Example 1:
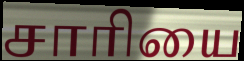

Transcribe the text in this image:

சாரியை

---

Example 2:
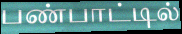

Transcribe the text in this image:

பண்பாட்டில்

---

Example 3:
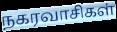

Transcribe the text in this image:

நகரவாசிகள்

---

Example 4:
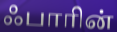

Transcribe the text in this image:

ஃபாரின்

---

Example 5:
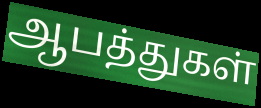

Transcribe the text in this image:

ஆபத்துகள்